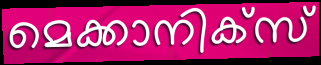
മെക്കാനിക്സ്